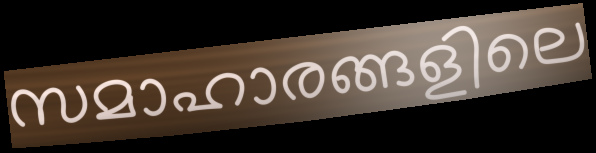
സമാഹാരങ്ങളിലെ